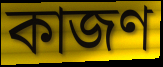
কাজণ